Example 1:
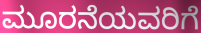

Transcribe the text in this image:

ಮೂರನೆಯವರಿಗೆ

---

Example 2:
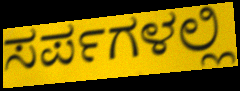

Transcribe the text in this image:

ಸರ್ಪಗಳಲ್ಲಿ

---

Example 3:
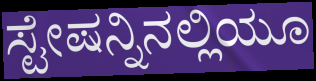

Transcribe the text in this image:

ಸ್ಟೇಷನ್ನಿನಲ್ಲಿಯೂ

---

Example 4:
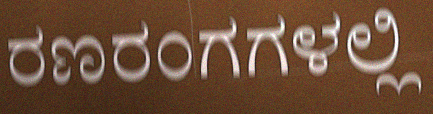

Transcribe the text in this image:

ರಣರಂಗಗಳಲ್ಲಿ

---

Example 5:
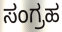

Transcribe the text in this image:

ಸಂಗ್ರಹ